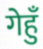
गेहुँ